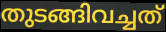
തുടങ്ങിവച്ചത്